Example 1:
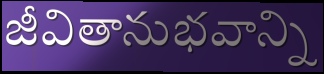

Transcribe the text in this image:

జీవితానుభవాన్ని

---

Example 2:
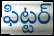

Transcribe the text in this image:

ఫిట్టర్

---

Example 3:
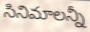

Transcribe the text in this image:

సినిమాలన్నీ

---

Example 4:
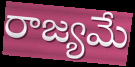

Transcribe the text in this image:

రాజ్యమే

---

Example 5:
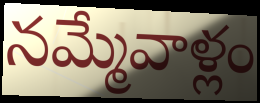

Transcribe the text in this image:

నమ్మేవాళ్లం